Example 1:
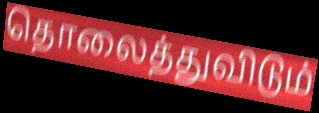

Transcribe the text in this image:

தொலைத்துவிடும்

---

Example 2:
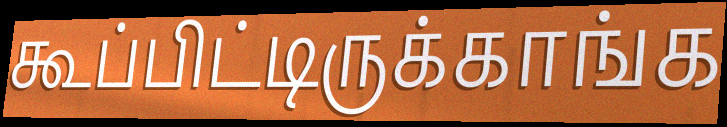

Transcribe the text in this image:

கூப்பிட்டிருக்காங்க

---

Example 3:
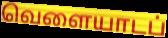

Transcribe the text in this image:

வெளையாடப்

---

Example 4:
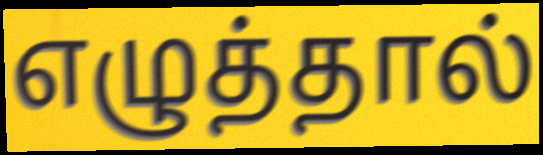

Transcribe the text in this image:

எழுத்தால்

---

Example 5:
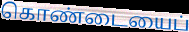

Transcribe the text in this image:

கொண்டையைப்